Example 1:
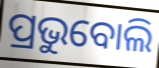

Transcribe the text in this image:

ପ୍ରଭୁବୋଲି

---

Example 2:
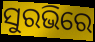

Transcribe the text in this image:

ସୁରଭିରେ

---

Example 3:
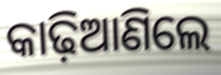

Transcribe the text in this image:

କାଢ଼ିଆଣିଲେ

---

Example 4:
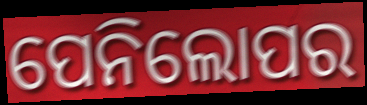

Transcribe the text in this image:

ପେନିଲୋପର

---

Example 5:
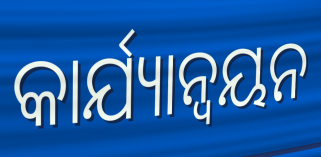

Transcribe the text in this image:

କାର୍ଯ୍ୟାନ୍ୱୟନ